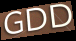
GDD